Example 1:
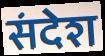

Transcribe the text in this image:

संदेश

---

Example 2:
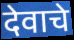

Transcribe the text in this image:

देवाचे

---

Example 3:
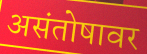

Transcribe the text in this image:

असंतोषावर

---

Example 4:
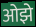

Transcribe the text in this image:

ओझे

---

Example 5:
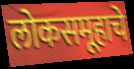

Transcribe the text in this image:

लोकसमूहाचे